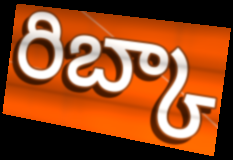
రిబ్కా